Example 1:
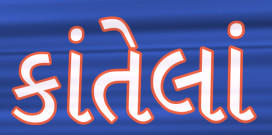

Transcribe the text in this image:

કાંતેલાં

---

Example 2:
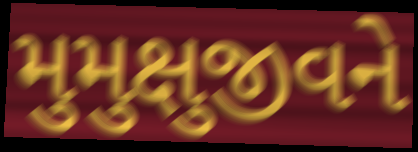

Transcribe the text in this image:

મુમુક્ષુજીવને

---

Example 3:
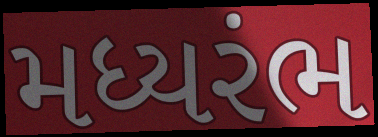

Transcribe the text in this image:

મધ્યરંભ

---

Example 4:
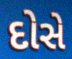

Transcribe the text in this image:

દોસે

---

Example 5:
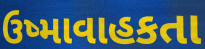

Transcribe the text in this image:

ઉષ્માવાહકતા